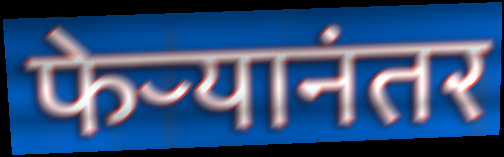
फेऱ्यानंतर